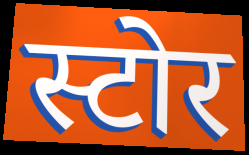
स्टोर